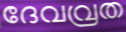
ദേവവ്രത